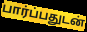
பார்ப்பதுடன்